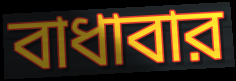
বাধাবার